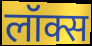
लॉक्स